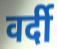
वर्दी